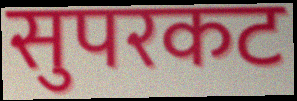
सुपरकट